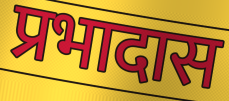
प्रभादास